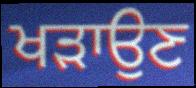
ਖੜਾਉਣ